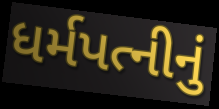
ધર્મપત્નીનું